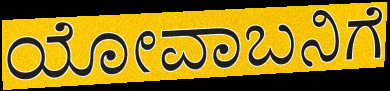
ಯೋವಾಬನಿಗೆ